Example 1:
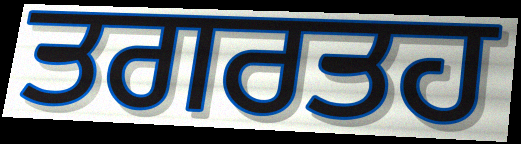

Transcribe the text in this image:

ਤਗਰਤਹ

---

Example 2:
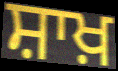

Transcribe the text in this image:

ਸ਼ਾਖ਼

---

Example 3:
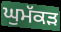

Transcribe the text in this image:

ਘੁਮੱਕਡ਼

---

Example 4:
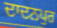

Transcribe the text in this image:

ਦਾਦਨਪੁਰ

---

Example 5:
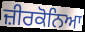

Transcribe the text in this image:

ਜ਼ੀਰਕੋਨਿਆ